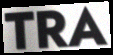
TRA